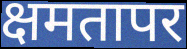
क्षमतापर